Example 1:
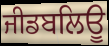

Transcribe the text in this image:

ਜੀਡਬਲਿਊ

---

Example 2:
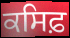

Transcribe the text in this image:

ਕਸਿਫ਼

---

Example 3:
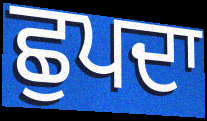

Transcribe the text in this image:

ਛੁਪਦਾ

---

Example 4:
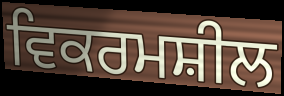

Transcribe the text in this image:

ਵਿਕਰਮਸ਼ੀਲ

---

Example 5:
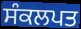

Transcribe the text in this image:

ਸੰਕਲਪਤ